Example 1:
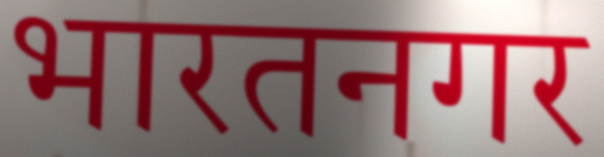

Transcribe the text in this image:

भारतनगर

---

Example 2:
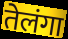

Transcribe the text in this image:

तेलंगा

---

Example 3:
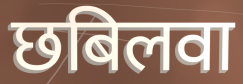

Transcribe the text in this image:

छबिलवा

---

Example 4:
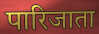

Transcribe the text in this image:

पारिजाता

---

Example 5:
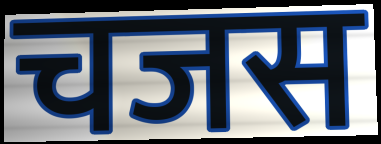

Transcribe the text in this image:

चजस